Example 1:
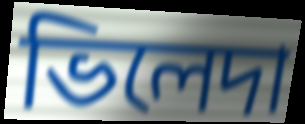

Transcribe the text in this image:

ভিলেদা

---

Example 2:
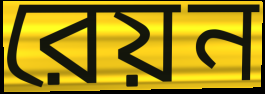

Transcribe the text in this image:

রেয়ন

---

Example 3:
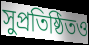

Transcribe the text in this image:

সুপ্রতিষ্ঠিতও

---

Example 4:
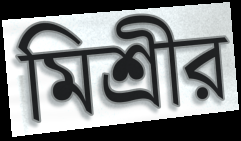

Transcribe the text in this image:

মিশ্রীর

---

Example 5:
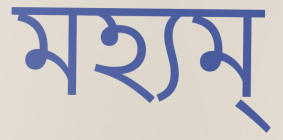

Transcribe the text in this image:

মহ্যম্